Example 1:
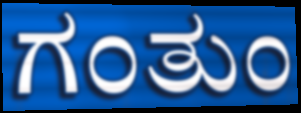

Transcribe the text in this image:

ಗಂತುಂ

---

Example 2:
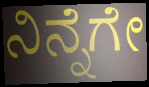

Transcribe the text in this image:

ನಿನ್ನೆಗೇ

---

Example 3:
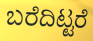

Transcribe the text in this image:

ಬರೆದಿಟ್ಟರೆ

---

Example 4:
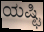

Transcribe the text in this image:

ಯಷ್ಟಿ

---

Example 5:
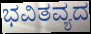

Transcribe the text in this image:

ಭವಿತವ್ಯದ